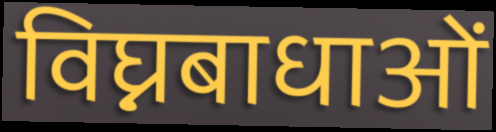
विघ्नबाधाओं